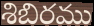
శిబిరము